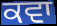
ਕਵਾ